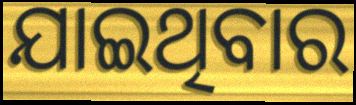
ଯାଇଥିବାର